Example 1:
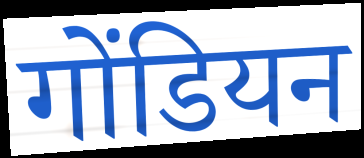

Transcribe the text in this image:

गोंडियन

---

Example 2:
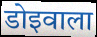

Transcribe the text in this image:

डोइवाला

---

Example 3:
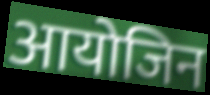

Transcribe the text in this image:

आयोजिन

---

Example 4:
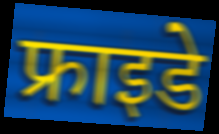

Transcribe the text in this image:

फ्राइडे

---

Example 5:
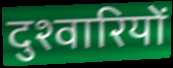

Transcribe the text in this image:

दुश्वारियों